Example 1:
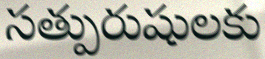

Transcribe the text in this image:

సత్పురుషులకు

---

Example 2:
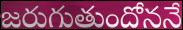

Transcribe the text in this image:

జరుగుతుందోననే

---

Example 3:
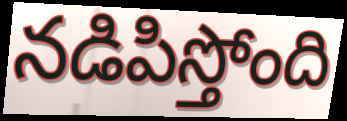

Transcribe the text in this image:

నడిపిస్తోంది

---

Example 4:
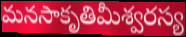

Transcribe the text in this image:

మనసాకృతిమీశ్వరస్య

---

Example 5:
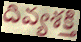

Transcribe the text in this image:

దివ్యశక్తి